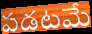
పడటమే